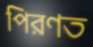
পিরণত